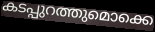
കടപ്പുറത്തുമൊക്കെ